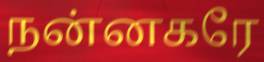
நன்னகரே